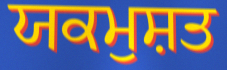
ਯਕਮੁਸ਼ਤ